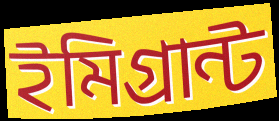
ইমিগ্রান্ট